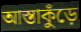
আস্তাকুঁড়ে